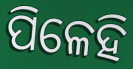
ପିଳେହି